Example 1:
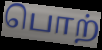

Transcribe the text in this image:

பொற்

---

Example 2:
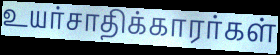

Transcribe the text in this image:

உயர்சாதிக்காரர்கள்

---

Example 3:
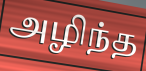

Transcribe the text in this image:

அழிந்த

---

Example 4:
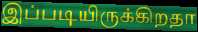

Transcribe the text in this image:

இப்படியிருக்கிறதா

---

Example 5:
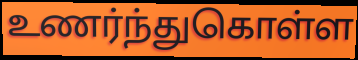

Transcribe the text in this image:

உணர்ந்துகொள்ள